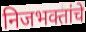
निजभक्तांचे